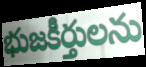
భుజకీర్తులను